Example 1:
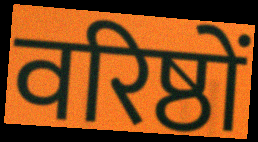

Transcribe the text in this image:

वरिष्ठों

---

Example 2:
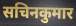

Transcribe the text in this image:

सचिनकुमार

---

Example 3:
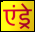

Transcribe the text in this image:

एंड्रे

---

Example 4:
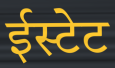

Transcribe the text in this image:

ईस्टेट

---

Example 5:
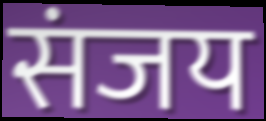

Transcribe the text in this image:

संजय